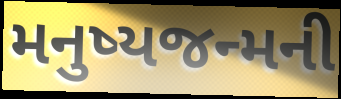
મનુષ્યજન્મની